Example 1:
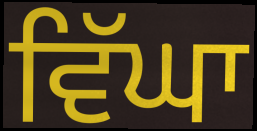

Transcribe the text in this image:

ਵਿੱਘਾ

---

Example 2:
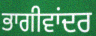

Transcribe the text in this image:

ਭਾਗੀਵਾਂਦਰ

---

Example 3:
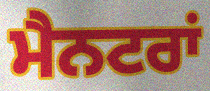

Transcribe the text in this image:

ਮੈਨਟਰਾਂ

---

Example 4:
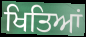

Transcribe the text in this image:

ਖਿਤਿਆਂ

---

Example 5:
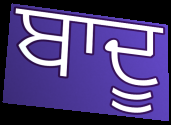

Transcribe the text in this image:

ਬਾਦੂ